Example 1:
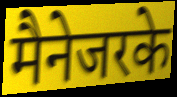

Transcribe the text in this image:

मैनेजरके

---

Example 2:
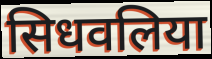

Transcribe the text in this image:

सिधवलिया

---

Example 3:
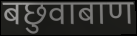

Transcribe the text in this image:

बछुवाबाण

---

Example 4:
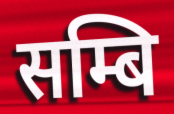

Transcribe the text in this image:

सम्बि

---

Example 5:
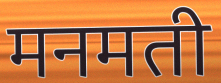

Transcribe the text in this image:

मनमती